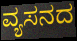
ವ್ಯಸನದ